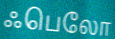
ஃபெலோ